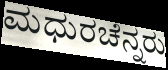
ಮಧುರಚೆನ್ನರು